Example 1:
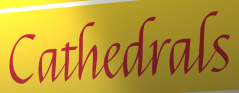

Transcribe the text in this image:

Cathedrals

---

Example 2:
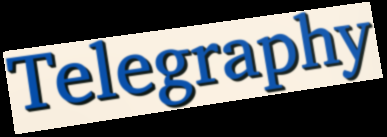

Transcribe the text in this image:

Telegraphy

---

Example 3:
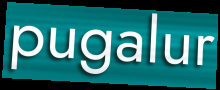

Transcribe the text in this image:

pugalur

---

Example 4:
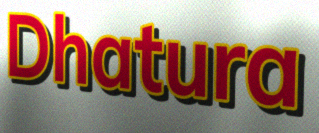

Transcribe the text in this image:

Dhatura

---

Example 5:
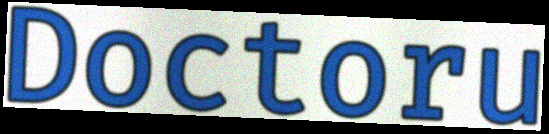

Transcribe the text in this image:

Doctoru